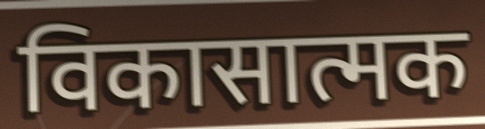
विकासात्मक